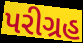
પરીગ્રહ